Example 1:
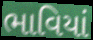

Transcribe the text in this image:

ભાવિયાં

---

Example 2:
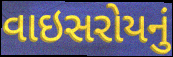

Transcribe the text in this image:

વાઇસરોયનું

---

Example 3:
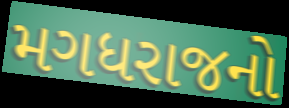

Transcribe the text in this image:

મગધરાજનો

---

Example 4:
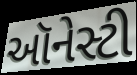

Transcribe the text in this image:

ઑનેસ્ટી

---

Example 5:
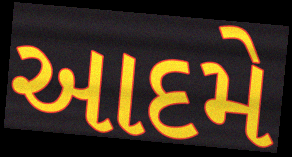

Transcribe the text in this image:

આદમે